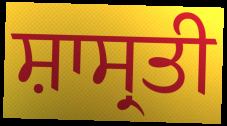
ਸ਼ਾਸ੍ਰਤੀ